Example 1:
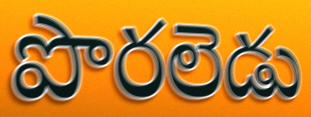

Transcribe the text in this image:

పొరలెడు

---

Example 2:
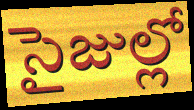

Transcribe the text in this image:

సైజుల్లో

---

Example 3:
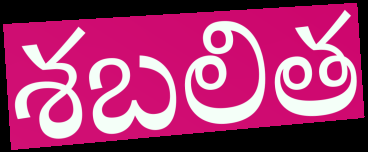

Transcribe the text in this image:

శబలిత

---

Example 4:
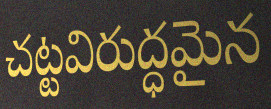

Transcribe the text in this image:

చట్టవిరుద్ధమైన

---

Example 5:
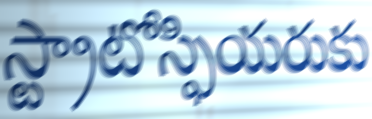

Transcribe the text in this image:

స్ట్రాటోస్ఫియరుకు